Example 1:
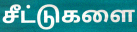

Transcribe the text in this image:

சீட்டுகளை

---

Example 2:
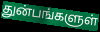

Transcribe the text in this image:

துன்பங்களுள்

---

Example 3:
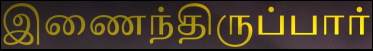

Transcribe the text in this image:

இணைந்திருப்பார்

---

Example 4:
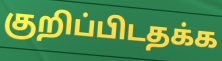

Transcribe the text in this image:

குறிப்பிடதக்க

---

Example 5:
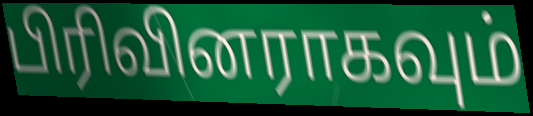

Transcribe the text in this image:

பிரிவினராகவும்